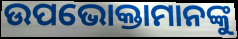
ଉପଭୋକ୍ତାମାନଙ୍କୁ